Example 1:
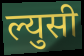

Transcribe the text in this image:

ल्युसी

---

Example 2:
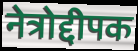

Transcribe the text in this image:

नेत्रोद्दीपक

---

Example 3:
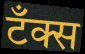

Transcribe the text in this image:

टँक्स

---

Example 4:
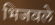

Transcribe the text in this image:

भिजवले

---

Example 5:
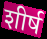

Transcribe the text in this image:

शीर्ष